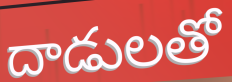
దాడులతో